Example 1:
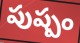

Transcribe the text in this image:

పుష్పం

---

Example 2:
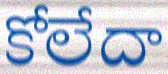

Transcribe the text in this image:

కోలేదా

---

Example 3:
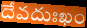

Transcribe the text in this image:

దేవదుఃఖం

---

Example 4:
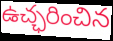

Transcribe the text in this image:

ఉచ్ఛరించిన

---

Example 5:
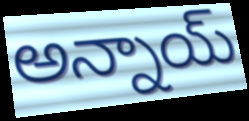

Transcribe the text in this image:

అన్నాయ్